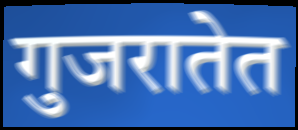
गुजरातेत